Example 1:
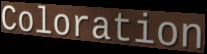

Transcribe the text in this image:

Coloration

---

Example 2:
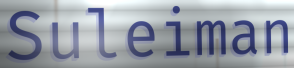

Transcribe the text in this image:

Suleiman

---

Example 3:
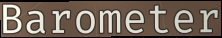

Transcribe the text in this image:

Barometer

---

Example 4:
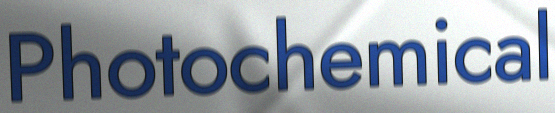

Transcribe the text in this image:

Photochemical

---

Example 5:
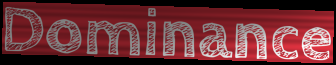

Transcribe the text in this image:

Dominance